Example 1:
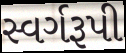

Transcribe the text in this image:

સ્વર્ગરૂપી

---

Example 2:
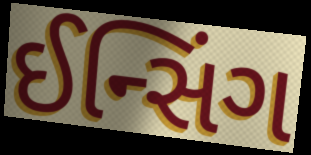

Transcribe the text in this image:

ઈન્સિંગ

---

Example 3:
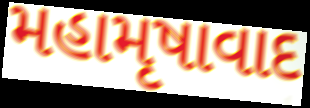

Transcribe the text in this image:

મહામૃષાવાદ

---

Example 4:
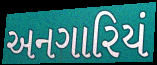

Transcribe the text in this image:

અનગારિયં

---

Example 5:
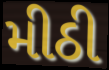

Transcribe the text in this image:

મીઠી